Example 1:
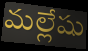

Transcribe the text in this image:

మల్లేషు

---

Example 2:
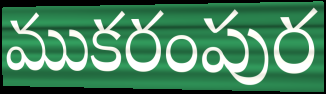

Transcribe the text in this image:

ముకరంపుర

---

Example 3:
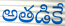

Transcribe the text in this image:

అతడికే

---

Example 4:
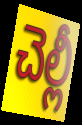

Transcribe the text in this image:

చెల్లీ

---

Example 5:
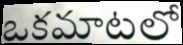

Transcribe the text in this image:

ఒకమాటలో